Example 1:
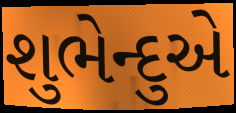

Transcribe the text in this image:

શુભેન્દુએ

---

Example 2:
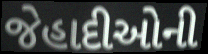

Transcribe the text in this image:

જેહાદીઓની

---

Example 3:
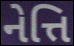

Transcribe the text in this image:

નેત્તિ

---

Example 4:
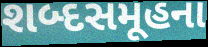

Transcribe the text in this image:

શબ્દસમૂહના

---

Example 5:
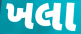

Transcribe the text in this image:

ખલા